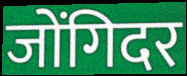
जोंगिदर